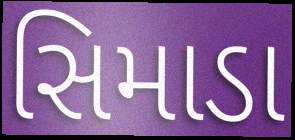
સિમાડા